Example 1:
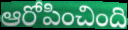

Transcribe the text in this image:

ఆరోపించింది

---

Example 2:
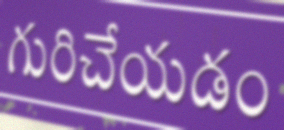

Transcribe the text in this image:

గురిచేయడం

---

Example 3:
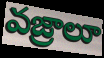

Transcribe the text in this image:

వజ్రాలూ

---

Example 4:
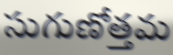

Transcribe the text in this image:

సుగుణోత్తమ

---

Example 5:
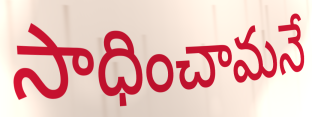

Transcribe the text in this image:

సాధించామనే